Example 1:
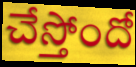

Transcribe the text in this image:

చేస్తోందో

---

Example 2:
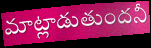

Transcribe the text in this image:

మాట్లాడుతుందనీ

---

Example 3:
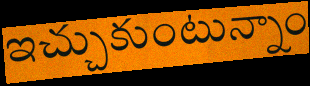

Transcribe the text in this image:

ఇచ్చుకుంటున్నాం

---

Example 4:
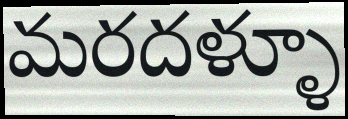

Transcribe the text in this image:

మరదళ్ళూ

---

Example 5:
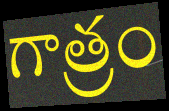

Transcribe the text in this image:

గాత్రం